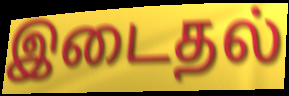
இடைதல்